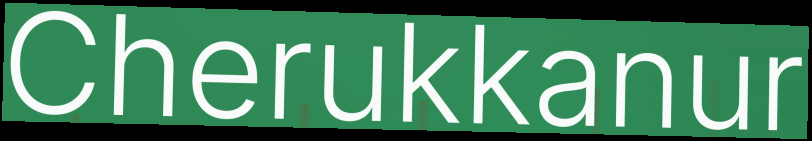
Cherukkanur